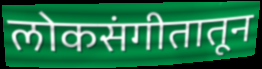
लोकसंगीतातून